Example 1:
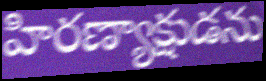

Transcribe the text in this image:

హిరణ్యాక్షుడను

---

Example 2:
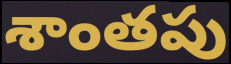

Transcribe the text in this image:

శాంతపు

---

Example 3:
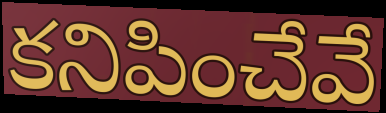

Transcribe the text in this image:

కనిపించేవే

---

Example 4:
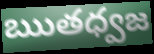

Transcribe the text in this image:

ఋతధ్వజ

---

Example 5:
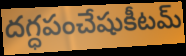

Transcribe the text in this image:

దగ్ధపంచేషుకీటమ్